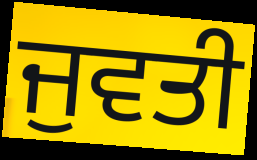
ਜੁਵਤੀ